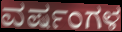
ವರ್ಷಂಗಳ